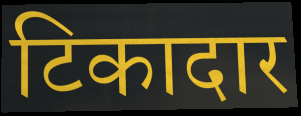
टिकादार